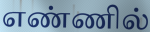
எண்ணில்